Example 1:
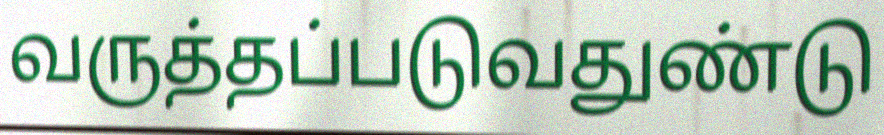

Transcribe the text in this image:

வருத்தப்படுவதுண்டு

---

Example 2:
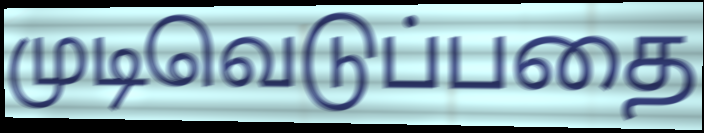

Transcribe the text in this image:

முடிவெடுப்பதை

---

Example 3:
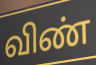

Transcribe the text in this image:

விண்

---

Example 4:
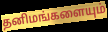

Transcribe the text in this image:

தனிமங்களையும்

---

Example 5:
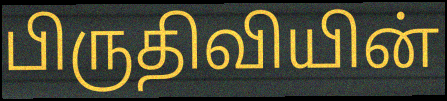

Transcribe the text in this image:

பிருதிவியின்